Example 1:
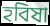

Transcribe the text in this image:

হবিষা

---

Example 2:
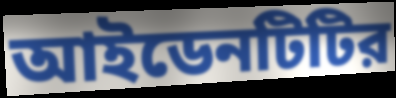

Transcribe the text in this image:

আইডেনটিটির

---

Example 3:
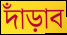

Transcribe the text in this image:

দাঁড়াব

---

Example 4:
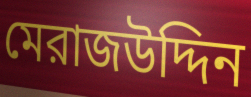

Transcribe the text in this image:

মেরাজউদ্দিন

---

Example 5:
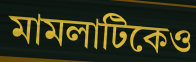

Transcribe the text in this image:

মামলাটিকেও